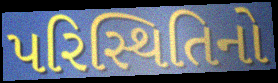
પરિસ્થિતિનો